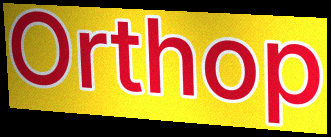
Orthop